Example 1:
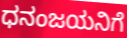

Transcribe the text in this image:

ಧನಂಜಯನಿಗೆ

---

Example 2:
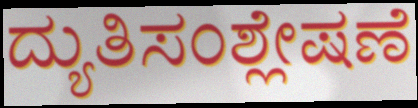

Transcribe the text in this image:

ದ್ಯುತಿಸಂಶ್ಲೇಷಣೆ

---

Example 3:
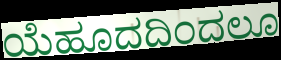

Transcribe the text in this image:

ಯೆಹೂದದಿಂದಲೂ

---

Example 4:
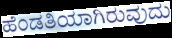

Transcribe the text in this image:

ಹೆಂಡತಿಯಾಗಿರುವುದು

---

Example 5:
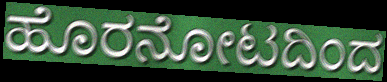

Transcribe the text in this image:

ಹೊರನೋಟದಿಂದ